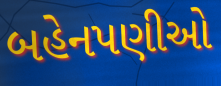
બહેનપણીઓ